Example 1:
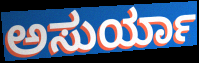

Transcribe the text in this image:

ಅಸುರ್ಯಾ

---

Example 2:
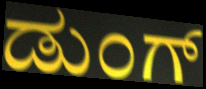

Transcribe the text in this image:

ಡುಂಗ್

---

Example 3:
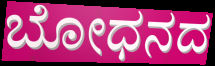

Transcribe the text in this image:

ಬೋಧನದ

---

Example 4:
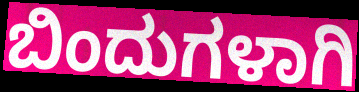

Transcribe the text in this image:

ಬಿಂದುಗಳಾಗಿ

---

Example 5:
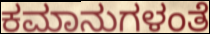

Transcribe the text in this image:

ಕಮಾನುಗಳಂತೆ